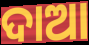
ଦାଆ